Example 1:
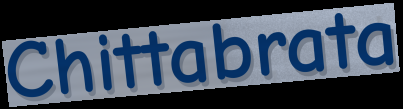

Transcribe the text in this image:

Chittabrata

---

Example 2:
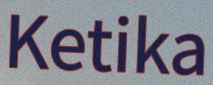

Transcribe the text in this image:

Ketika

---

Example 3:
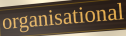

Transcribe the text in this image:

organisational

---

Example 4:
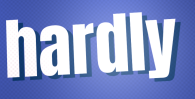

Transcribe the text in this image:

hardly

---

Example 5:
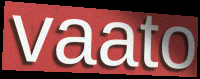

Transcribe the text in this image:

vaato